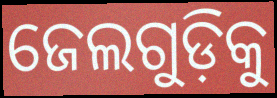
ଜେଲଗୁଡ଼ିକୁ